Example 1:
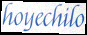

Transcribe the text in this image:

hoyechilo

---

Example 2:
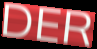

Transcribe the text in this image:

DER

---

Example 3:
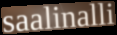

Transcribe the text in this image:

saalinalli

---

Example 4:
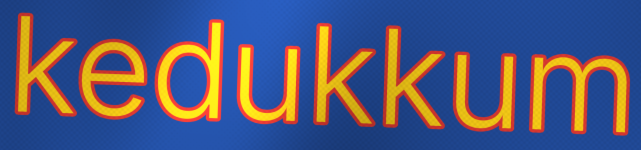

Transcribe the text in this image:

kedukkum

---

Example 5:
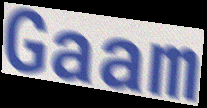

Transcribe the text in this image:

Gaam